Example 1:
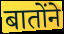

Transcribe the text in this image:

बातोंने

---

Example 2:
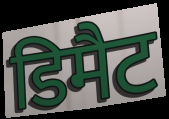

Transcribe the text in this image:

डिमैट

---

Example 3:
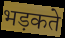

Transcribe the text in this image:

भड़कते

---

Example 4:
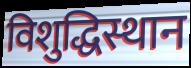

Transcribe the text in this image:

विशुद्धिस्थान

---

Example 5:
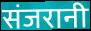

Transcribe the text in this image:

संजरानी